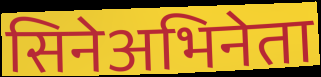
सिनेअभिनेता